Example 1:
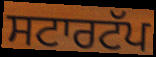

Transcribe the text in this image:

ਸਟਾਰਟੱਪ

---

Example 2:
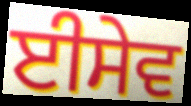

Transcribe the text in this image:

ਈਸੇਵ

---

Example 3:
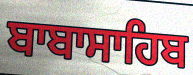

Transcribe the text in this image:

ਬਾਬਾਸਾਹਿਬ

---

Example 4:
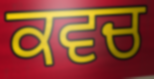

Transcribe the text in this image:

ਕਵਚ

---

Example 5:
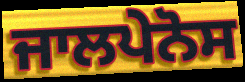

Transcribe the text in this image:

ਜਾਲਪੇਨੋਸ